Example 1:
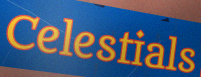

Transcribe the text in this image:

Celestials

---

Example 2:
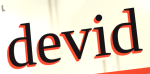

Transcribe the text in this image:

devid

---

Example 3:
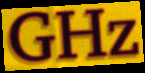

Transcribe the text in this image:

GHz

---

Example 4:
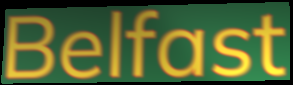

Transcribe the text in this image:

Belfast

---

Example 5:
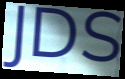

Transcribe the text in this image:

JDS